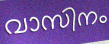
വാസിനം